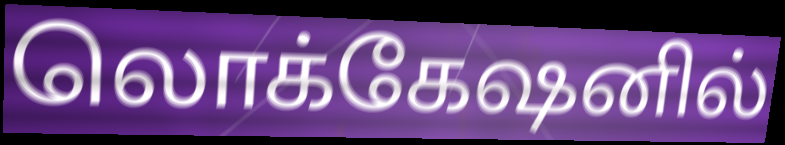
லொக்கேஷனில்